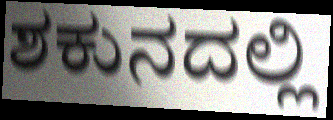
ಶಕುನದಲ್ಲಿ